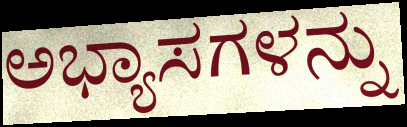
ಅಭ್ಯಾಸಗಳನ್ನು